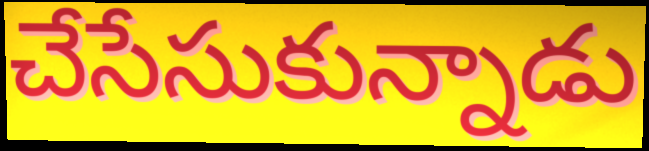
చేసేసుకున్నాడు